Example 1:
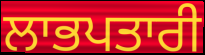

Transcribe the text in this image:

ਲਾਭਪਤਾਰੀ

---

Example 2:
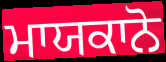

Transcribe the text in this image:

ਮਾਯਕਾਨੋ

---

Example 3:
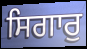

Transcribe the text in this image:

ਸਿਗਾਰੁ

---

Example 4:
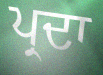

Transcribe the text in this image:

ਪ੍ਰਦਾ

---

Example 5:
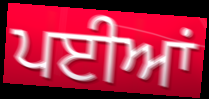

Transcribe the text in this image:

ਪਈਆਂ